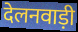
देलनवाड़ी